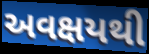
અવક્ષયથી